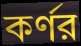
কর্ণর